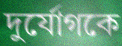
দুর্যোগকে